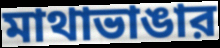
মাথাভাঙার